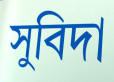
সুবিদা